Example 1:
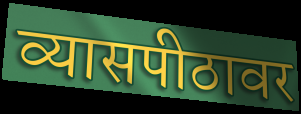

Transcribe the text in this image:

व्यासपीठावर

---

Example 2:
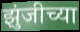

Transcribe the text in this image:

झुंजीच्या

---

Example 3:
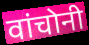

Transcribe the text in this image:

वांचोनी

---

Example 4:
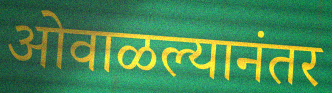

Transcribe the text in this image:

ओवाळल्यानंतर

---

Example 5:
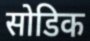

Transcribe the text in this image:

सोडिक